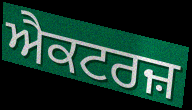
ਐਕਟਰਜ਼